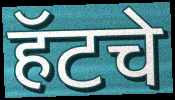
हॅटचे